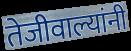
तेजीवाल्यांनी